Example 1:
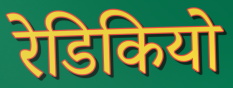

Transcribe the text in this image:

रेडिकियो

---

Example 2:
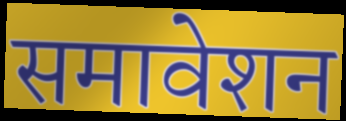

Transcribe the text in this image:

समावेशन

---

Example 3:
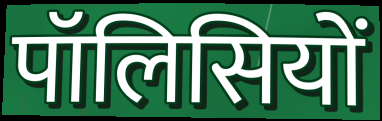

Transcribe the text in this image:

पॉलिसियों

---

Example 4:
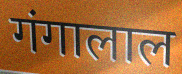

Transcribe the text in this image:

गंगालाल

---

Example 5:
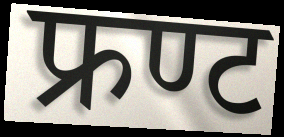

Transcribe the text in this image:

फ्रण्ट